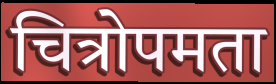
चित्रोपमता